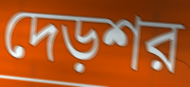
দেড়শর